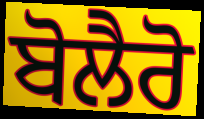
ਬੋਲੈਰੋ